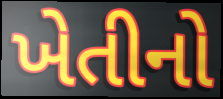
ખેતીનો